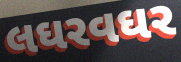
લઘરવઘર